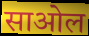
साओल